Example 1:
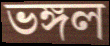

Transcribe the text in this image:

ভঙ্গল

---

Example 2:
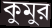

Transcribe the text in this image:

কুমুর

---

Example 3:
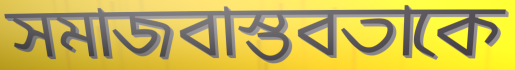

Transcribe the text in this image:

সমাজবাস্তবতাকে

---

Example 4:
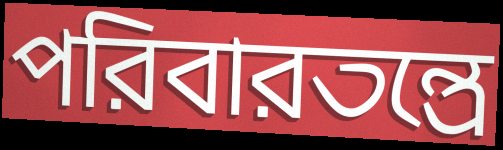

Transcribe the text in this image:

পরিবারতন্ত্রে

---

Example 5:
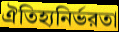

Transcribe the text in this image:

ঐতিহ্যনির্ভরতা